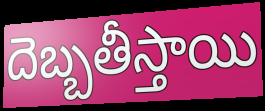
దెబ్బతీస్తాయి